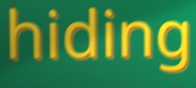
hiding